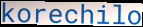
korechilo